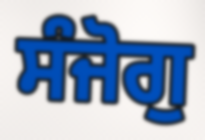
ਸੰਜੋਗੁ